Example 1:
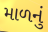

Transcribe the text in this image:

માળનું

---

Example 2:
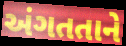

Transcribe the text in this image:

અંગતતાને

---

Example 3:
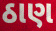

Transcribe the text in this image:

ઠાણ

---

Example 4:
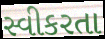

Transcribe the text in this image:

સ્વીકરતા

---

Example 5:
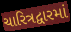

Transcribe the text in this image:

ચારિત્રદ્વારમાં